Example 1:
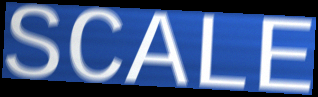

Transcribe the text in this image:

SCALE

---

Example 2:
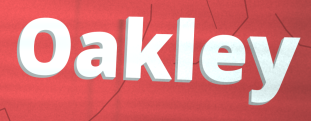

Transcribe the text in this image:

Oakley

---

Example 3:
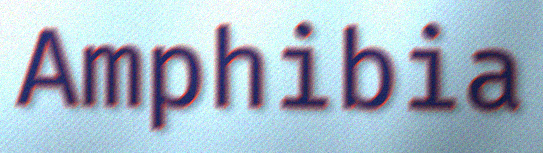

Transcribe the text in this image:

Amphibia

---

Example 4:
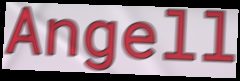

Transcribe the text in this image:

Angell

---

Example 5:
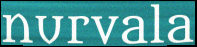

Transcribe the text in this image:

nurvala